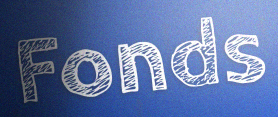
Fonds